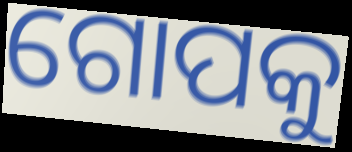
ଗୋପକୁ